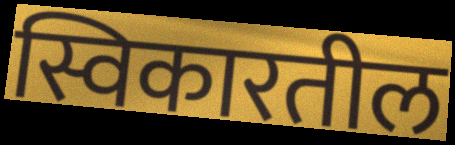
स्विकारतील